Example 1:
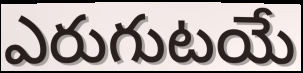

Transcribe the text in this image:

ఎరుగుటయే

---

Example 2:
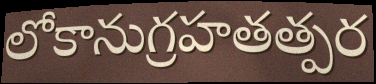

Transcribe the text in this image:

లోకానుగ్రహతత్పర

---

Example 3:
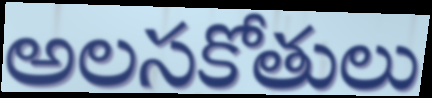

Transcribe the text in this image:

అలసకోతులు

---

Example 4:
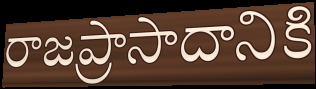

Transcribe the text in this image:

రాజప్రాసాదానికి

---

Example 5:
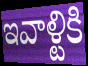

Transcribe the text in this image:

ఇవాళ్టికి